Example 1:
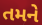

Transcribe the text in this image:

તમને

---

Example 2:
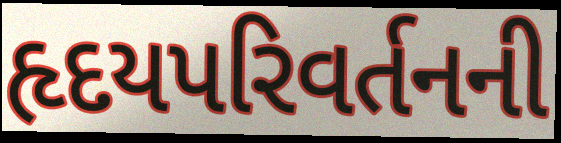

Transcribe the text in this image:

હૃદયપરિવર્તનની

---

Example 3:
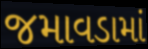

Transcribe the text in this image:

જમાવડામાં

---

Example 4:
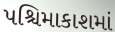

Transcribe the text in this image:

પશ્ચિમાકાશમાં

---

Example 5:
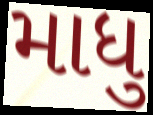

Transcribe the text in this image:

માધુ